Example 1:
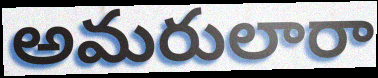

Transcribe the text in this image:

అమరులారా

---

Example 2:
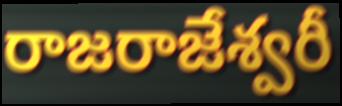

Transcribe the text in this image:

రాజరాజేశ్వరీ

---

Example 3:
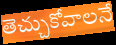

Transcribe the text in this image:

తెచ్చుకోవాలనే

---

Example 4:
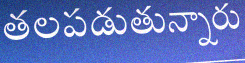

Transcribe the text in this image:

తలపడుతున్నారు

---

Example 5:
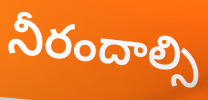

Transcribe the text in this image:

నీరందాల్సి